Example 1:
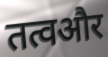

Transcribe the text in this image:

तत्वऔर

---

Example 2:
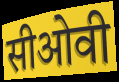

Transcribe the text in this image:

सीओवी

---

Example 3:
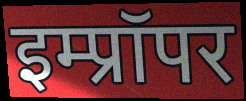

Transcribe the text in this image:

इम्प्रॉपर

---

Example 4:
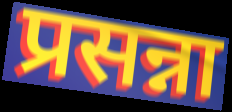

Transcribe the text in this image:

प्रसन्ना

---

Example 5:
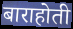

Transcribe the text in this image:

बाराहोती